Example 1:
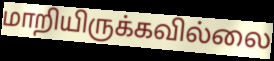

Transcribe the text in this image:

மாறியிருக்கவில்லை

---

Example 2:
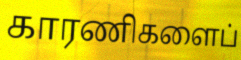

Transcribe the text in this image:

காரணிகளைப்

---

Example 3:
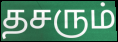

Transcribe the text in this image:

தசரும்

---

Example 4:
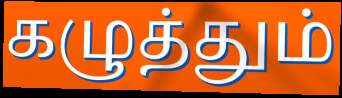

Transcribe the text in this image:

கழுத்தும்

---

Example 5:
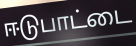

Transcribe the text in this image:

ஈடுபாட்டை